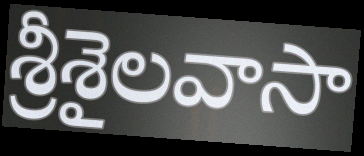
శ్రీశైలవాసా